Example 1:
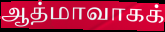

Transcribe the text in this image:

ஆத்மாவாகக்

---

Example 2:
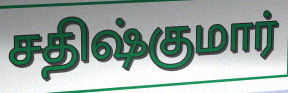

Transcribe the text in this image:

சதிஷ்குமார்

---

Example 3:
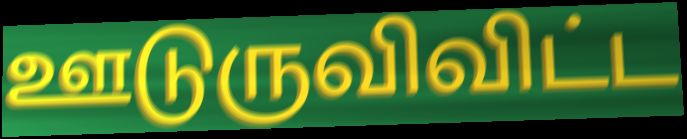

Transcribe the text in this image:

ஊடுருவிவிட்ட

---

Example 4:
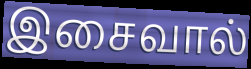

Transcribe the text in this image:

இசைவால்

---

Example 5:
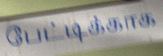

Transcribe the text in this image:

பேட்டிக்காக